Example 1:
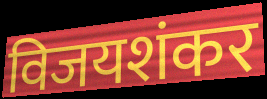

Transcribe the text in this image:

विजयशंकर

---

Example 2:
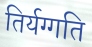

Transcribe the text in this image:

तिर्यग्गति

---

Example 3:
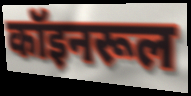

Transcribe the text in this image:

कॉइनरूल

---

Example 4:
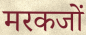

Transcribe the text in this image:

मरकजों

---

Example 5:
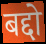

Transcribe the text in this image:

बद्दो